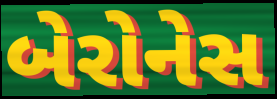
બેરોનેસ